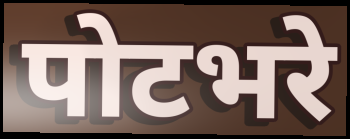
पोटभरे